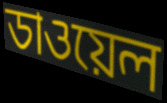
ডাওয়েল